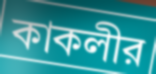
কাকলীর